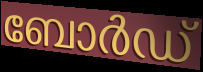
ബോർഡ്